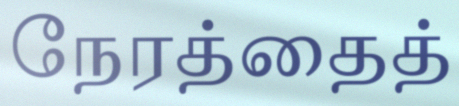
நேரத்தைத்